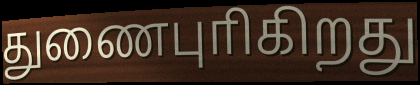
துணைபுரிகிறது